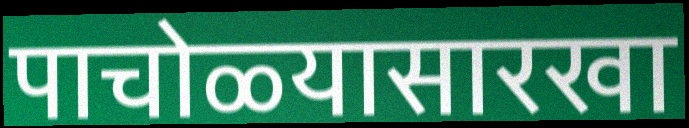
पाचोळ्यासारखा